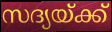
സദ്യയ്ക്ക്